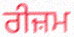
ਰੀਜ਼ਮ